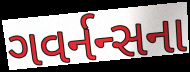
ગવર્નન્સના